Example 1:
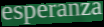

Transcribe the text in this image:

esperanza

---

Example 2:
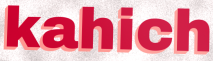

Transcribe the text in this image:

kahich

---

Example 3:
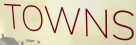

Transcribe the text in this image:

TOWNS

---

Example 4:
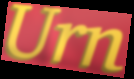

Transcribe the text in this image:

Urn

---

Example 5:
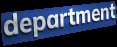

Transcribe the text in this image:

department